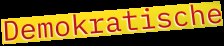
Demokratische